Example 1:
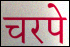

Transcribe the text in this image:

चरपे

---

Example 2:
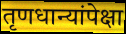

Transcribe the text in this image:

तृणधान्यांपेक्षा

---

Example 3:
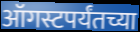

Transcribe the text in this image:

ऑगस्टपर्यंतच्या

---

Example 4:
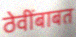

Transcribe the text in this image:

ठेवींबाबत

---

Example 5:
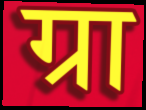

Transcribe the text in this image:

ग्रा